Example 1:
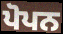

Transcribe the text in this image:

ਪੋਪਨ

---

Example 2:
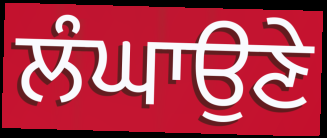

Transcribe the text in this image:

ਲੰਘਾਉਣੇ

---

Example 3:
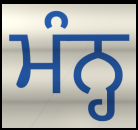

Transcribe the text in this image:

ਮੰਨ੍ਹ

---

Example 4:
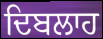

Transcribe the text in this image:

ਦਿਬਲਾਹ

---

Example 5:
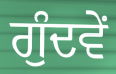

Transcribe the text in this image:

ਗੁੰਦਵੇਂ